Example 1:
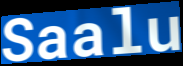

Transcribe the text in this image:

Saalu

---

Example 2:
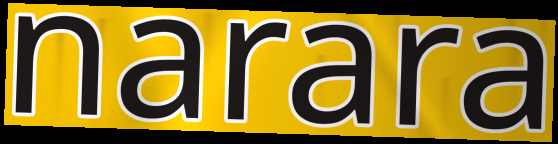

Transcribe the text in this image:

narara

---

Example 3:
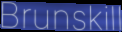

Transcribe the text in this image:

Brunskill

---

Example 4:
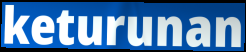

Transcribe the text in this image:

keturunan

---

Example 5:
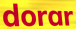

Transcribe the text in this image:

dorar